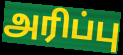
அரிப்பு